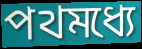
পথমধ্যে